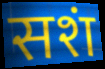
सशं